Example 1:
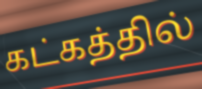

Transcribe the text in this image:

கட்கத்தில்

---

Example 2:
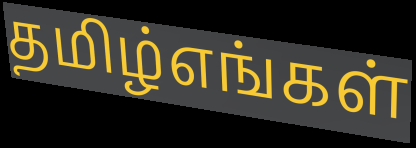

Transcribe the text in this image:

தமிழ்எங்கள்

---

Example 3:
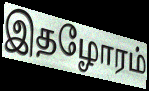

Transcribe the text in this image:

இதழோரம்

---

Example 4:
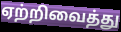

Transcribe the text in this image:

ஏற்றிவைத்து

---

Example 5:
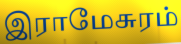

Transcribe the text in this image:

இராமேசுரம்